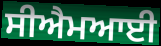
ਸੀਐਮਆਈ